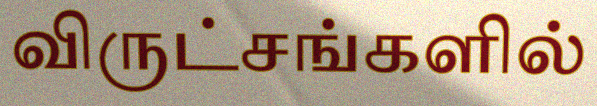
விருட்சங்களில்